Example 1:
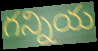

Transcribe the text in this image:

గన్నియ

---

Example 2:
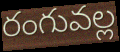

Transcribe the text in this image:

రంగువల్ల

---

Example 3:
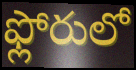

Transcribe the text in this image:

ఫ్లోరులో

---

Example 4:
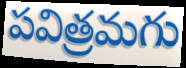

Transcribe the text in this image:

పవిత్రమగు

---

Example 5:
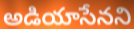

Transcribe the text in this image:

అడియాసేనని